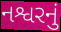
નશ્વરનું